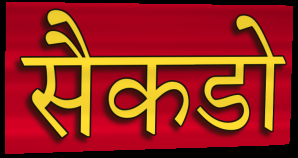
सैकडो